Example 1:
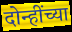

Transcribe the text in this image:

दोन्हींच्या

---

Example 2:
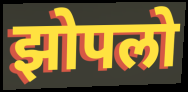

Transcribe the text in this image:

झोपलो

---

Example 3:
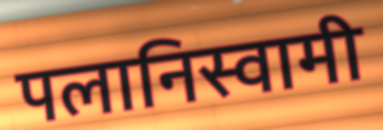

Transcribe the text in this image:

पलानिस्वामी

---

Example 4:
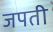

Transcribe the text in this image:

जपती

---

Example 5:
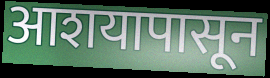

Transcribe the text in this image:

आशयापासून